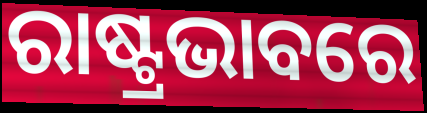
ରାଷ୍ଟ୍ରଭାବରେ